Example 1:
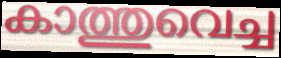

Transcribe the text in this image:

കാത്തുവെച്ച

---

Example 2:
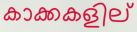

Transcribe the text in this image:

കാക്കകളില്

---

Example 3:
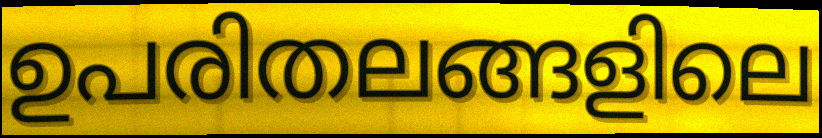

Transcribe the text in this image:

ഉപരിതലങ്ങളിലെ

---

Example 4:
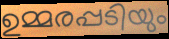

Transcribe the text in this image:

ഉമ്മരപ്പടിയും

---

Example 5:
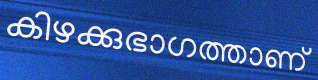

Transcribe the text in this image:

കിഴക്കുഭാഗത്താണ്